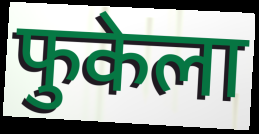
फुकेला